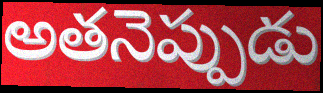
అతనెప్పుడు